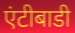
एंटीबाडी